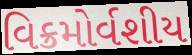
વિક્રમોર્વશીય